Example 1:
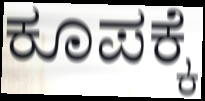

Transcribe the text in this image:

ಕೂಪಕ್ಕೆ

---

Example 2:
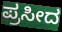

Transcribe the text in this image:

ಪ್ರಸೀದ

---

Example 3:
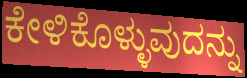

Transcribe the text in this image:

ಕೇಳಿಕೊಳ್ಳುವುದನ್ನು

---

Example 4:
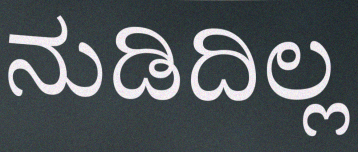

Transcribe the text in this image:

ನುಡಿದಿಲ್ಲ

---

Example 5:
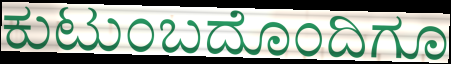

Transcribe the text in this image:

ಕುಟುಂಬದೊಂದಿಗೂ